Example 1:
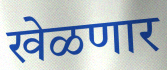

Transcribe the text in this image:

खेळणार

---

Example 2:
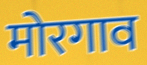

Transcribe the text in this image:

मोरगाव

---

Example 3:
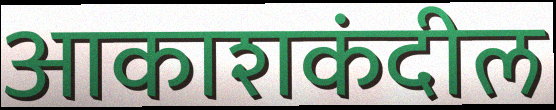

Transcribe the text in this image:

आकाशकंदील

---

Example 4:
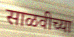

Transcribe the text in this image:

साळवीच्या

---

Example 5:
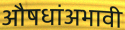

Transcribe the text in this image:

औषधांअभावी